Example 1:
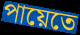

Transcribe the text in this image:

পায়েতে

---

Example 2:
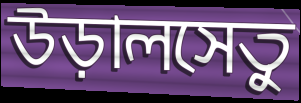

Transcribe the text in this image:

উড়ালসেতু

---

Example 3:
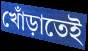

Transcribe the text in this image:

খোঁড়াতেই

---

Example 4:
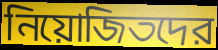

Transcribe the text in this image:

নিয়োজিতদের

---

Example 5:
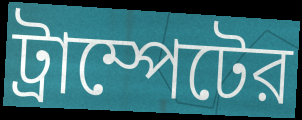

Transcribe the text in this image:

ট্রাম্পেটের